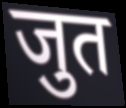
जुत